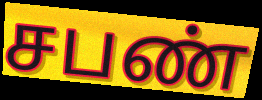
சபண்